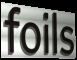
foils